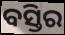
ବସ୍ତିର